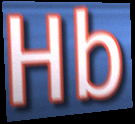
Hb